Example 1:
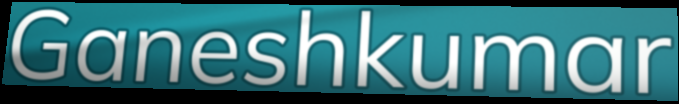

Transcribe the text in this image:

Ganeshkumar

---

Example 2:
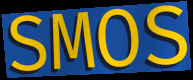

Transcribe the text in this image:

SMOS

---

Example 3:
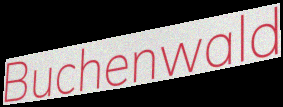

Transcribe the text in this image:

Buchenwald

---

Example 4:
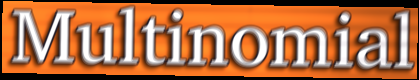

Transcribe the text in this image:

Multinomial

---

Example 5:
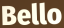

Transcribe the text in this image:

Bello